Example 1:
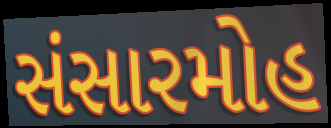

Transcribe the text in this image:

સંસારમોહ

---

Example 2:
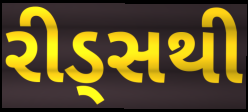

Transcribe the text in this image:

રીડ્સથી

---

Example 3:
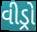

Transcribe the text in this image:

વીડ્રો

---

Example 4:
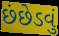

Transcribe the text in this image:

છંછેડવું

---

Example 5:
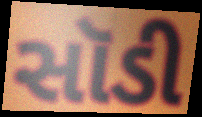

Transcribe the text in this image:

સૉડી